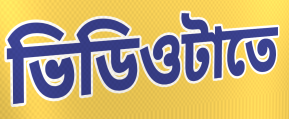
ভিডিওটাতে